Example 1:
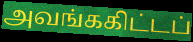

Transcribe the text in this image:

அவங்ககிட்டப்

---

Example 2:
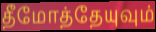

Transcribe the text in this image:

தீமோத்தேயுவும்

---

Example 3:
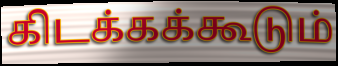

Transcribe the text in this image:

கிடக்கக்கூடும்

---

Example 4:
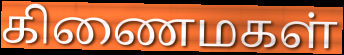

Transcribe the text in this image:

கிணைமகள்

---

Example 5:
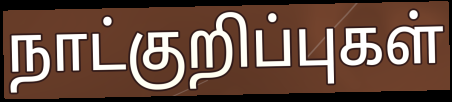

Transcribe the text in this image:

நாட்குறிப்புகள்